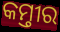
କମ୍ତୀର